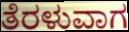
ತೆರಳುವಾಗ